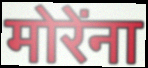
मोरेंना